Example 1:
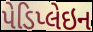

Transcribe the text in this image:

પેડિપ્લેઇન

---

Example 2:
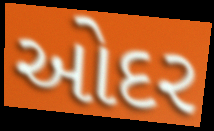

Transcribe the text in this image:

ઓદર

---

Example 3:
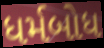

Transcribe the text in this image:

ધર્મબોધ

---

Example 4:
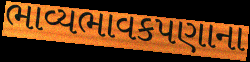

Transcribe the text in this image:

ભાવ્યભાવકપણાના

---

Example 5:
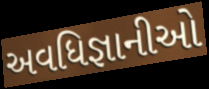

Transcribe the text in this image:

અવધિજ્ઞાનીઓ